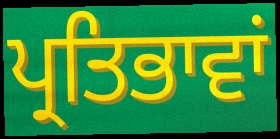
ਪ੍ਰਤਿਭਾਵਾਂ